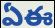
ఏఈ